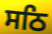
ਸਠਿ